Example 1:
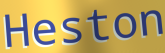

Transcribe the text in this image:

Heston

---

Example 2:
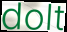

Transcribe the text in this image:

dolt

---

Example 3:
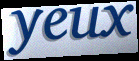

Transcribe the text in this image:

yeux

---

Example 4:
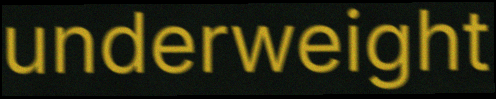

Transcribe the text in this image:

underweight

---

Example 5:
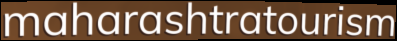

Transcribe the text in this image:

maharashtratourism